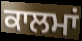
ਕਾਲਮਾਂ